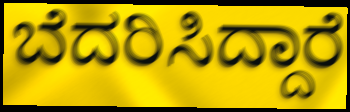
ಬೆದರಿಸಿದ್ದಾರೆ